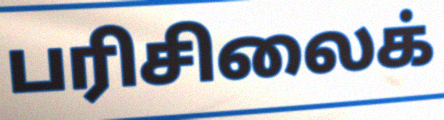
பரிசிலைக்